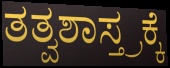
ತತ್ವಶಾಸ್ತ್ರಕ್ಕೆ